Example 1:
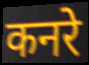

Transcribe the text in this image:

कनरे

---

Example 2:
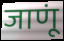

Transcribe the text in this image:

जाणूं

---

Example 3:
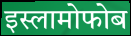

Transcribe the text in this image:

इस्लामोफोब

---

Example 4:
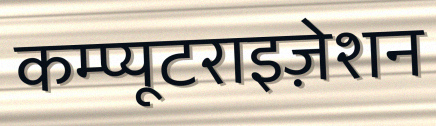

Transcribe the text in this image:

कम्प्यूटराइज़ेशन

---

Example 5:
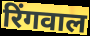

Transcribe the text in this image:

रिंगवाल